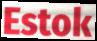
Estok